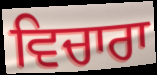
ਵਿਚਾਰਾ